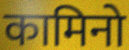
कामिनो